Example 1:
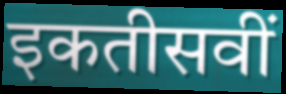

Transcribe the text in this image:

इकतीसवीं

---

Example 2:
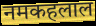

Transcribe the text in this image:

नमकहलाल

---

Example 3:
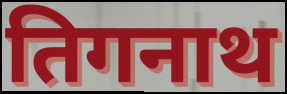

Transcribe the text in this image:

तिगनाथ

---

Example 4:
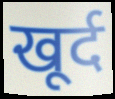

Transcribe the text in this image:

खूर्द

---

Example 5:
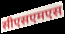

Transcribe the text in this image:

सीएसएमएस